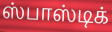
ஸ்பாஸ்டிக்